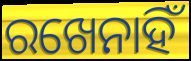
ରଖେନାହିଁ